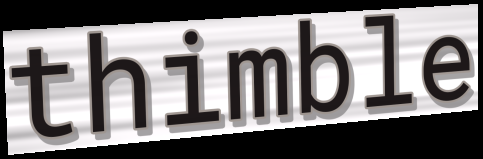
thimble